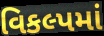
વિકલ્પમાં